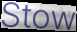
Stow